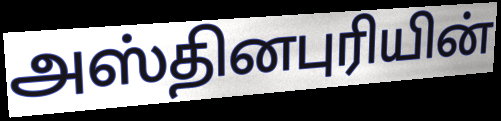
அஸ்தினபுரியின்